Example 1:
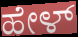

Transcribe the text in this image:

ಹೇಳ್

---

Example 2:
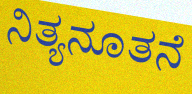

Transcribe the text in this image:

ನಿತ್ಯನೂತನೆ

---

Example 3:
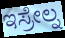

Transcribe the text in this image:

ಇಸ್ರೇಲ್ನ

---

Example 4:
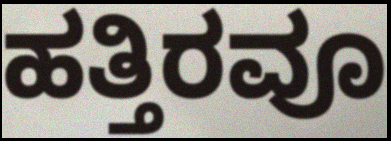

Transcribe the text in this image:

ಹತ್ತಿರವೂ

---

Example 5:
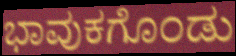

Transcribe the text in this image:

ಭಾವುಕಗೊಂಡು